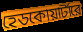
হেডকোয়ার্টারে